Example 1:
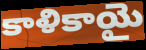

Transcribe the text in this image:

కాళికాయై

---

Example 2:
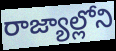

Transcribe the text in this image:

రాజ్యాల్లోని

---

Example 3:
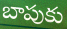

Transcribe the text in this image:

బాపుకు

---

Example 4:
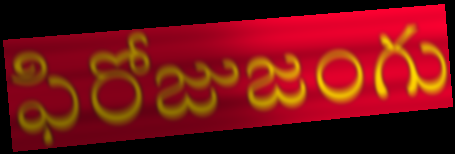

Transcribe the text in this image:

ఫిరోజుజంగు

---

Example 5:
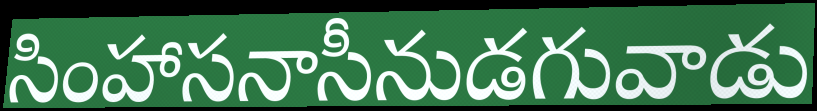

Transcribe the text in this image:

సింహాసనాసీనుడగువాడు